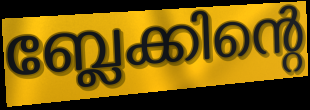
ബ്ലേക്കിന്റെ